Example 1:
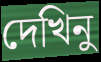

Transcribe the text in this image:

দেখিনু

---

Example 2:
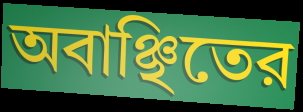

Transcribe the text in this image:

অবাঞ্ছিতের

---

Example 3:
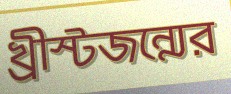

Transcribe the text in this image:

খ্রীস্টজন্মের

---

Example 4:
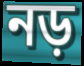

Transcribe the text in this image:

নড়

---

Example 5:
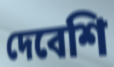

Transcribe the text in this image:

দেবেশি